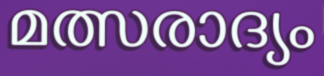
മത്സരാദ്യം